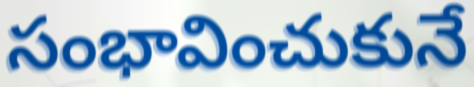
సంభావించుకునే